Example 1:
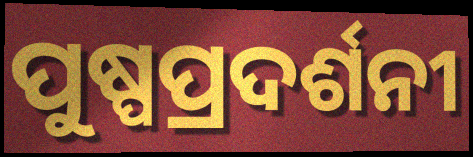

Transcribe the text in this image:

ପୁଷ୍ପପ୍ରଦର୍ଶନୀ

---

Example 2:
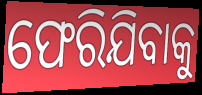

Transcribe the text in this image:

ଫେରିଯିବାକୁ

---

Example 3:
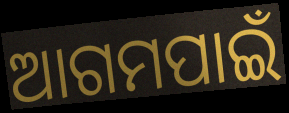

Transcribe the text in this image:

ଆଗମପାଇଁ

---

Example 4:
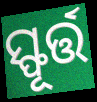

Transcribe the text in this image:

ସ୍ଫୂର୍ତ୍ତ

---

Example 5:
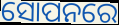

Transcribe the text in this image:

ସୋପନରେ